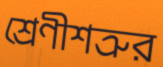
শ্রেণীশত্রুর